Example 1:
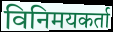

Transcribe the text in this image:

विनिमयकर्ता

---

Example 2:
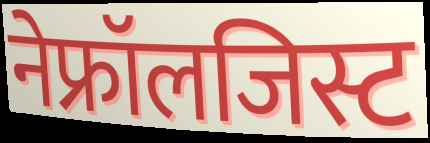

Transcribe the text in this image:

नेफ्रॉलजिस्ट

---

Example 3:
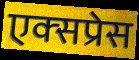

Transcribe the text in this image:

एक्‍सप्रेस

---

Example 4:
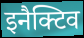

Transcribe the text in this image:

इनैक्टिव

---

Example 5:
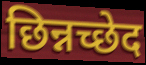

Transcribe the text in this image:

छिन्नच्छेद